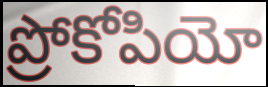
ప్రోకోపియో